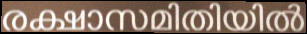
രക്ഷാസമിതിയിൽ